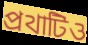
প্রথাটিও